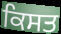
ਕਿਸਤ